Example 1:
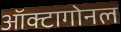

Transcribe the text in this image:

ऑक्टागोनल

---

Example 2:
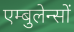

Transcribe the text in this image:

एम्बुलेन्सों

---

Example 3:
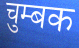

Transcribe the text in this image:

चुम्बक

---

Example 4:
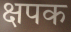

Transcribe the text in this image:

क्षपक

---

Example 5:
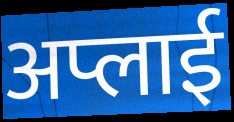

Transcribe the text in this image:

अप्‍लाई